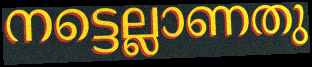
നട്ടെല്ലാണതു